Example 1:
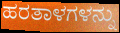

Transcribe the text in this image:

ಹರತಾಳಗಳನ್ನು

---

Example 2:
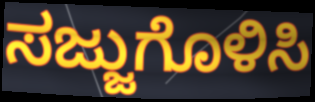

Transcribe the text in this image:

ಸಜ್ಜುಗೊಳಿಸಿ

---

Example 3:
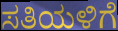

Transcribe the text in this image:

ಸತಿಯಳಿಗೆ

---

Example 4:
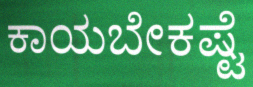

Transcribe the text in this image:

ಕಾಯಬೇಕಷ್ಟೆ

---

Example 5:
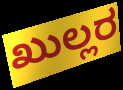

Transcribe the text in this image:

ಖುಲ್ಲರ